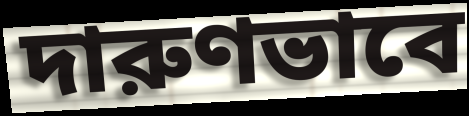
দারুণভাবে